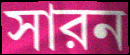
সারন